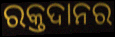
ରକ୍ତଦାନର